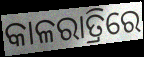
କାଳରାତ୍ରିରେ